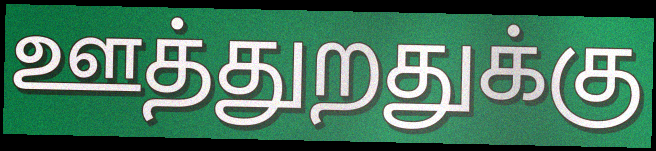
ஊத்துறதுக்கு